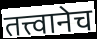
तत्त्वानेच